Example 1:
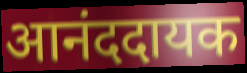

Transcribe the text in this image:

आनंददायक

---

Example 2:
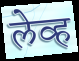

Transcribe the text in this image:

लेव्ह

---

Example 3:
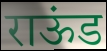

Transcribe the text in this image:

राऊंड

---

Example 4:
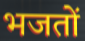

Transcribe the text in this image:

भजतों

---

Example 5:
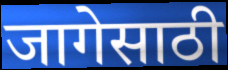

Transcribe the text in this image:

जागेसाठी